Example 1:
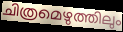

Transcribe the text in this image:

ചിത്രമെഴുത്തിലും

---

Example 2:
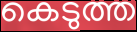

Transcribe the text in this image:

കെടുത്ത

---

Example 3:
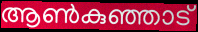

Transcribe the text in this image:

ആൺകുഞ്ഞാട്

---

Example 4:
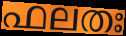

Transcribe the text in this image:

ഫലതഃ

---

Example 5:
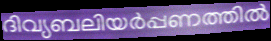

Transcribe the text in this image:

ദിവ്യബലിയർപ്പണത്തിൽ